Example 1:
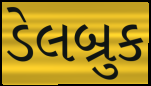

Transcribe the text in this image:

ડેલબ્રુક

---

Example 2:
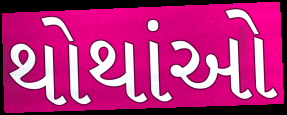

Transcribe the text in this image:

થોથાંઓ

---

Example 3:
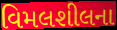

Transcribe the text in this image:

વિમલશીલના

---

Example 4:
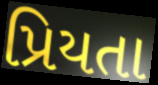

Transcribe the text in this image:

પ્રિયતા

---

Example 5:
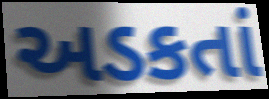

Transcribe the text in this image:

અડકતાં